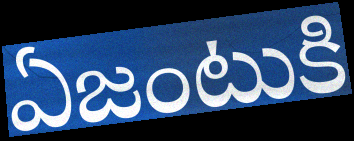
ఏజంటుకి